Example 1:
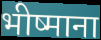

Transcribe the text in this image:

भीष्माना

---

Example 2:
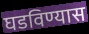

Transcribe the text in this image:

घडविण्यास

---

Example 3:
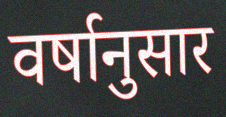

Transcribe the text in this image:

वर्षानुसार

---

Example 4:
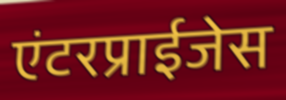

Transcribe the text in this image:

एंटरप्राईजेस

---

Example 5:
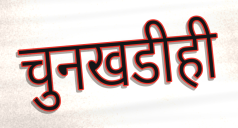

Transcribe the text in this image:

चुनखडीही